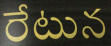
రేటున